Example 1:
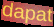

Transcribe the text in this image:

dapat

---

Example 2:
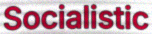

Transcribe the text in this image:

Socialistic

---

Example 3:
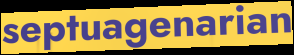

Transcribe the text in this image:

septuagenarian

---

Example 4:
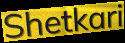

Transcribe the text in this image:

Shetkari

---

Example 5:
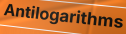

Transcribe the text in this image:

Antilogarithms